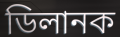
ডিলানক